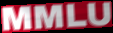
MMLU